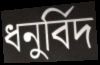
ধনুৰ্বিদ